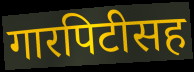
गारपिटीसह